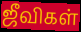
ஜீவிகள்